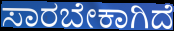
ಸಾರಬೇಕಾಗಿದೆ